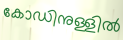
കോഡിനുള്ളിൽ